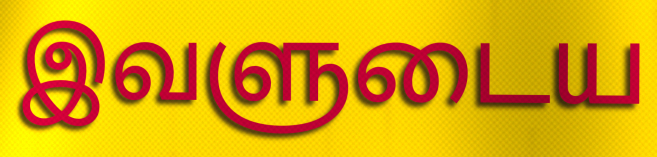
இவளுடைய